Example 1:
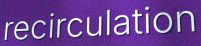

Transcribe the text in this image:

recirculation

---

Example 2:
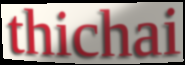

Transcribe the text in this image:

thichai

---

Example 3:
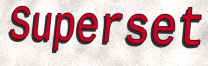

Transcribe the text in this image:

Superset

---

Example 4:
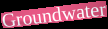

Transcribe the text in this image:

Groundwater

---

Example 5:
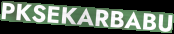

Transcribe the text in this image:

PKSEKARBABU